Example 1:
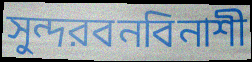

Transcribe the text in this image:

সুন্দরবনবিনাশী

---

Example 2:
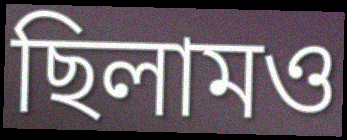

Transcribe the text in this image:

ছিলামও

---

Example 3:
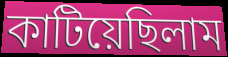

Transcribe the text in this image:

কাটিয়েছিলাম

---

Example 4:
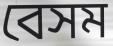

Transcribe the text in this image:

বেসম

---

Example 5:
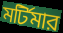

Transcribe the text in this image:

মর্টিমার